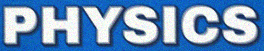
PHYSICS